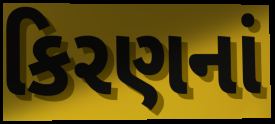
કિરણનાં